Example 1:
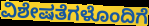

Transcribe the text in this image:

ವಿಶೇಷತೆಗಳೊಂದಿಗೆ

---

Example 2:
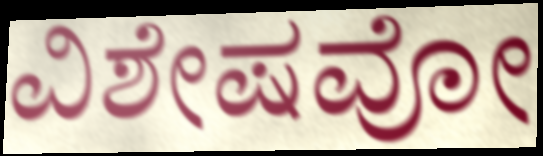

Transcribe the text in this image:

ವಿಶೇಷವೋ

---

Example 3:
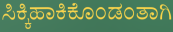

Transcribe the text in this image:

ಸಿಕ್ಕಿಹಾಕಿಕೊಂಡಂತಾಗಿ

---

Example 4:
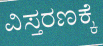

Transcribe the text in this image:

ವಿಸ್ತರಣಕ್ಕೆ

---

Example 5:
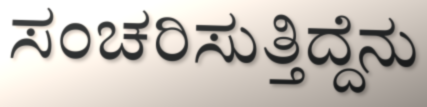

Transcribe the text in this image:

ಸಂಚರಿಸುತ್ತಿದ್ದೆನು